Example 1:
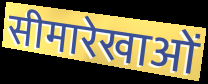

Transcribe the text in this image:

सीमारेखाओं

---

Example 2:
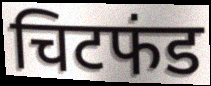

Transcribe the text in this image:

चिटफंड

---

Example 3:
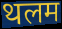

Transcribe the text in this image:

थलम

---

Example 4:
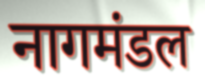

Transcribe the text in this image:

नागमंडल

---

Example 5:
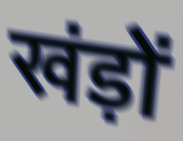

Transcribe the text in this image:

खंड़ों